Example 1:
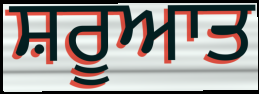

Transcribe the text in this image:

ਸ਼ਰੂਆਤ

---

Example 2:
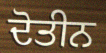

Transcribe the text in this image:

ਦੋਤੀਨ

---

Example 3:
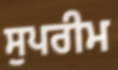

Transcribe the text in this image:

ਸੁਪਰੀਮ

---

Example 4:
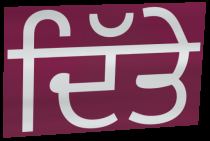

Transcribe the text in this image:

ਦਿੱਤੇ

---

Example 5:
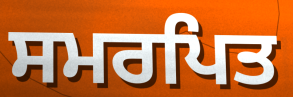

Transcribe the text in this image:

ਸਮਰਪਿਤ